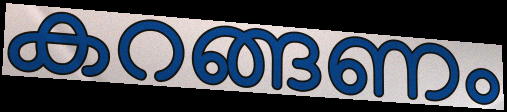
കറങ്ങണം